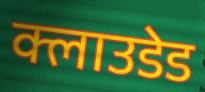
क्लाउडेड